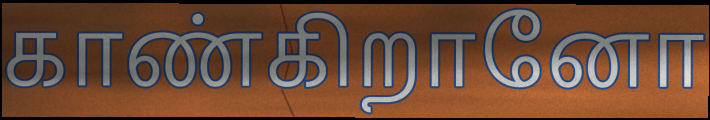
காண்கிறானோ